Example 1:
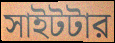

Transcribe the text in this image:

সাইটটার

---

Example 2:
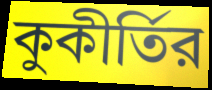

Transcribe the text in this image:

কুকীর্তির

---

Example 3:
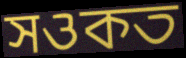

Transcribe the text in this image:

সওকত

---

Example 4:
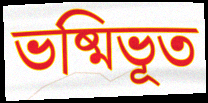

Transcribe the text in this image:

ভষ্মিভূত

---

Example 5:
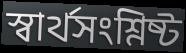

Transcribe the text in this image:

স্বার্থসংশ্নিষ্ট